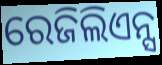
ରେଜିଲିଏନ୍ସ